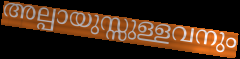
അല്പായുസ്സുള്ളവനും